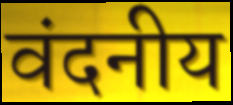
वंदनीय